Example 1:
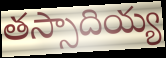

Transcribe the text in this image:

తస్సాదియ్య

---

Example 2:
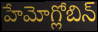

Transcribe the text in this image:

హేమోగ్లోబిన్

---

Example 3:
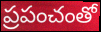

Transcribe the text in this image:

ప్రపంచంతో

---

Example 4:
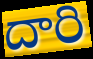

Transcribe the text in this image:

దారి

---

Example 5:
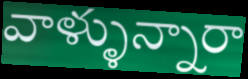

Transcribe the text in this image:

వాళ్ళున్నారా